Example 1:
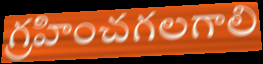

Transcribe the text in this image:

గ్రహించగలగాలి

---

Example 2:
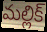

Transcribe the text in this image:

మల్లిక్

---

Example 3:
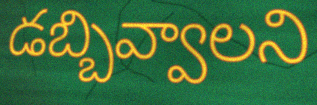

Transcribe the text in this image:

డబ్బివ్వాలని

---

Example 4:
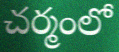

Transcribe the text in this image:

చర్మంలో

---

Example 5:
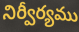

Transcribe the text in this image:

నిర్వీర్యము